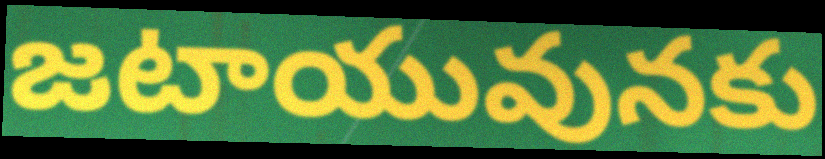
జటాయువునకు